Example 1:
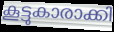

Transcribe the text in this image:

കൂട്ടുകാരാക്കി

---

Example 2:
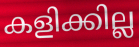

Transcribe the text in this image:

കളിക്കില്ല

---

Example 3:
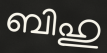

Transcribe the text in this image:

ബിഹു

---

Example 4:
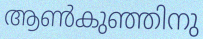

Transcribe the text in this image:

ആൺകുഞ്ഞിനു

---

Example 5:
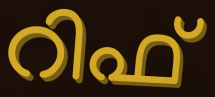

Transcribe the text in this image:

റിഫ്